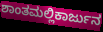
ಶಾಂತಮಲ್ಲಿಕಾರ್ಜುನ